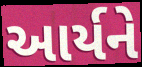
આર્યને